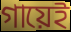
গায়েই